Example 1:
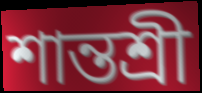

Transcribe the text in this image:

শান্তশ্রী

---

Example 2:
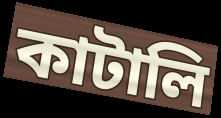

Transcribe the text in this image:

কাটালি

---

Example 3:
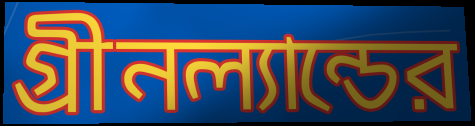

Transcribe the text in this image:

গ্রীনল্যান্ডের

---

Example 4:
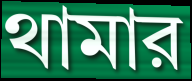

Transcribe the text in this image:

থামার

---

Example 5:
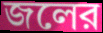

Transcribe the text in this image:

জলের